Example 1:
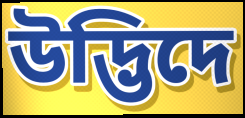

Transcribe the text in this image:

উদ্ভিদে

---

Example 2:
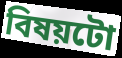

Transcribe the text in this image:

বিষয়টো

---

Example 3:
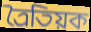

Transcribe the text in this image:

ত্ৰৈতিয়ক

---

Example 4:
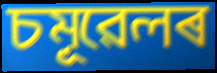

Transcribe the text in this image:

চমূৱেলৰ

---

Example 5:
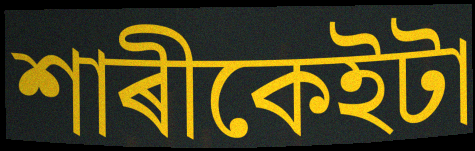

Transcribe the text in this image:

শাৰীকেইটা